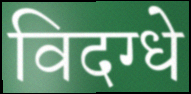
विदग्धे